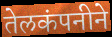
तेलकंपनीने